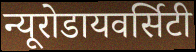
न्यूरोडायवर्सिटी